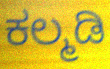
ಕಲ್ಮಡಿ